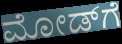
ಮೋಡ್‌ಗೆ